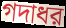
গদাধর